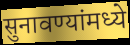
सुनावण्यांमध्ये